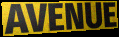
AVENUE